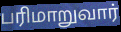
பரிமாறுவார்